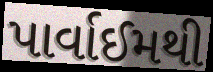
પાર્વાઈમથી